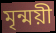
মৃন্ময়ী